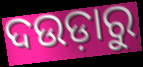
ଦଉଡ଼ାରୁ